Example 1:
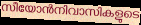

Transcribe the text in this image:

സീയോൻനിവാസികളുടെ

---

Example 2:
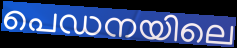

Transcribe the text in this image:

പെഡനയിലെ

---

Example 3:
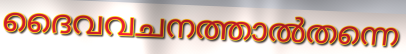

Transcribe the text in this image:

ദൈവവചനത്താൽതന്നെ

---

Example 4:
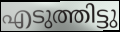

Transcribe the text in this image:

എടുത്തിട്ടു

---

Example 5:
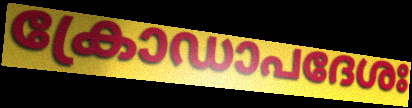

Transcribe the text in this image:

ക്രോഡാപദേശഃ